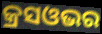
କ୍ରସଓଭର